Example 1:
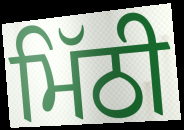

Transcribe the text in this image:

ਮਿੱਠੀ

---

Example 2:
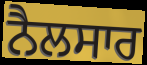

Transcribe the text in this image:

ਨੈਲਸਾਰ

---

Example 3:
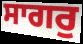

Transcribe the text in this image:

ਸਾਗਰੁ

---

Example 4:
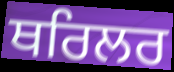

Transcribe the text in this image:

ਥਰਿਲਰ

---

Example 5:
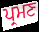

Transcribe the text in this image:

ਪ੍ਰਮਣ